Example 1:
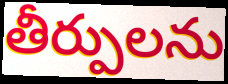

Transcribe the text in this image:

తీర్పులను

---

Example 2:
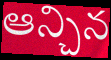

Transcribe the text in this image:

ఆన్చిన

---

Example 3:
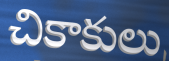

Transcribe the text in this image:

చికాకులు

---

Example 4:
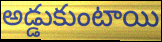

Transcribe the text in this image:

అడ్డుకుంటాయి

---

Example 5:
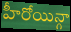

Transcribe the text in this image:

హీరోయిన్గా